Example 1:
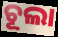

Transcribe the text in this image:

ଚୂଲା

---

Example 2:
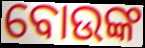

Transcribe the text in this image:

ବୋଉଙ୍କ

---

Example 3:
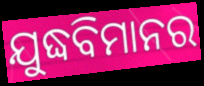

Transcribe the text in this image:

ଯୁଦ୍ଧବିମାନର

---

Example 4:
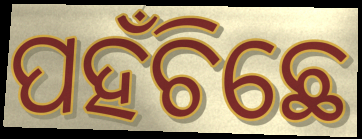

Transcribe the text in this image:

ପହଁଚିଛେ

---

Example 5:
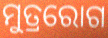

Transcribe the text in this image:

ମୁତ୍ରରୋଗ